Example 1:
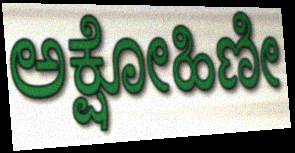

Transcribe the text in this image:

ಅಕ್ಷೋಹಿಣೀ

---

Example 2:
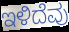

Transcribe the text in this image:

ಇಳಿದೆವು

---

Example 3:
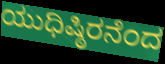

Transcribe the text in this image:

ಯುಧಿಷ್ಠಿರನೆಂದ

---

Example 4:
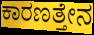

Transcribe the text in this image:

ಕಾರಣತ್ತೇನ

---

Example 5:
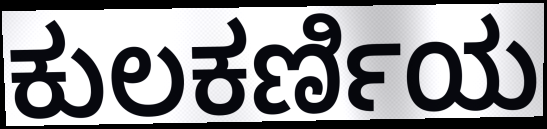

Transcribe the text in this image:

ಕುಲಕರ್ಣಿಯ